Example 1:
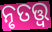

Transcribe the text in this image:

ନୃତତ୍ତ୍ୱ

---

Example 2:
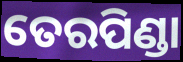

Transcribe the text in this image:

ତେରପିଣ୍ଡା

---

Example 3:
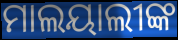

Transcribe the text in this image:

ମାଲୟାଲୀଙ୍କ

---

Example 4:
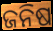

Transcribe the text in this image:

ଜନିଷ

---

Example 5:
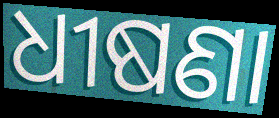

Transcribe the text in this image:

ଧୀଷଣା